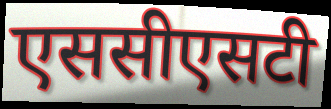
एससीएसटी